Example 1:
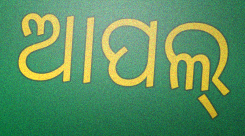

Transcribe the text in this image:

ଆପଲ୍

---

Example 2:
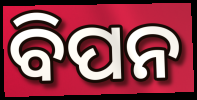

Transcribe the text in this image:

ବିପନ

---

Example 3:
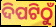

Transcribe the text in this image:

ଦିପଟିଠୁଁ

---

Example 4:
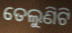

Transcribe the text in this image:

ତେଲୁଣିଟି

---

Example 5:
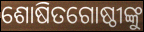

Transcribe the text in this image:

ଶୋଷିତଗୋଷ୍ଠୀଙ୍କୁ